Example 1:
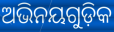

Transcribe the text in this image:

ଅଭିନୟଗୁଡ଼ିକ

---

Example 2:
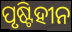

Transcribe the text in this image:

ପୃଷ୍ଟିହୀନ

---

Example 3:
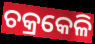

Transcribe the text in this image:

ଚକ୍ରକେଳି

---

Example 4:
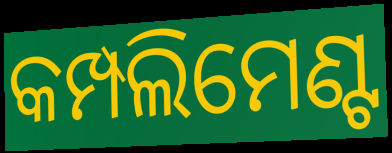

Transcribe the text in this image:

କମ୍ପଲିମେଣ୍ଟ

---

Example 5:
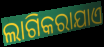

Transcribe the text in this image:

ଲାଗିକରାଯାଏ